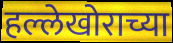
हल्लेखोराच्या